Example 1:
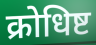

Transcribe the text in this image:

क्रोधिष्ट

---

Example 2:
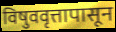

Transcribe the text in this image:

विषुववृत्तापासून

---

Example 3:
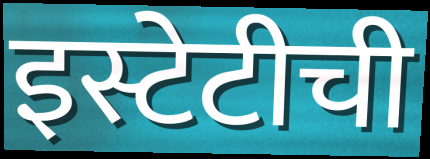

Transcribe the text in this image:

इस्टेटीची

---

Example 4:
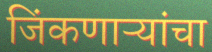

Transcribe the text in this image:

जिंकणाऱ्यांचा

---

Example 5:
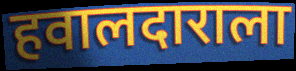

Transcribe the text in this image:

हवालदाराला